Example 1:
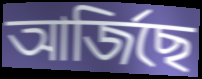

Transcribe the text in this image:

আৰ্জিছে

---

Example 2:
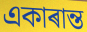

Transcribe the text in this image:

একাৰান্ত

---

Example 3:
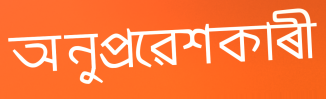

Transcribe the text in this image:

অনুপ্ৰৱেশকাৰী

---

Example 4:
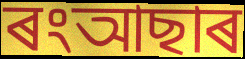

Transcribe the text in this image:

ৰংআছাৰ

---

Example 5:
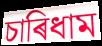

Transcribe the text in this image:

চাৰিধাম